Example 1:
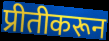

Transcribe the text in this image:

प्रीतीकरून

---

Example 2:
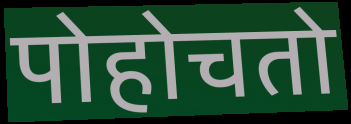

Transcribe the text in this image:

पोहोचतो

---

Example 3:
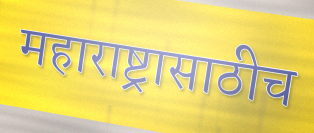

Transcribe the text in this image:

महाराष्ट्रासाठीच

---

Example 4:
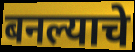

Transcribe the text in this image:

बनल्याचे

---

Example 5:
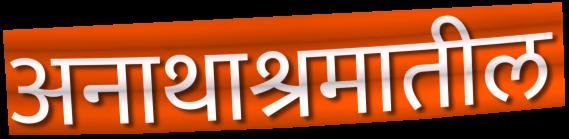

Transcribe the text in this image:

अनाथाश्रमातील